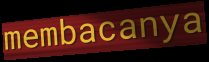
membacanya